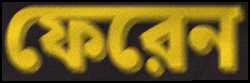
ফেরেন